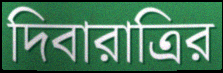
দিবারাত্রির